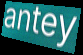
antey